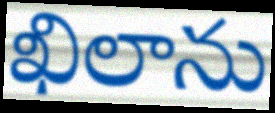
ఖిలాను